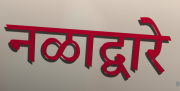
नळाद्वारे